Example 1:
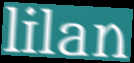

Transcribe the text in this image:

lilan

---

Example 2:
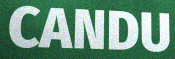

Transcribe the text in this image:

CANDU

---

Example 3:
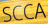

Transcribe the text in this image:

SCCA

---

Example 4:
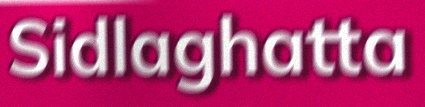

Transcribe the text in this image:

Sidlaghatta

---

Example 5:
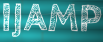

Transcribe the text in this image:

IJAMP